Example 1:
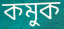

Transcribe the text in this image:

কমুক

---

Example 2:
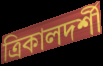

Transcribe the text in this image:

ত্রিকালদর্শী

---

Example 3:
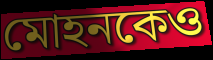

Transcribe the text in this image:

মোহনকেও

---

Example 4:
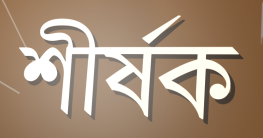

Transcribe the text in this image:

শীর্ষক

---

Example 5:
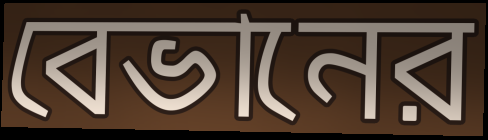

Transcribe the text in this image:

বেভানের